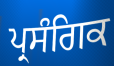
ਪ੍ਰਸੰਗਿਕ